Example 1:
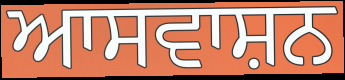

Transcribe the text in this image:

ਆਸਵਾਸ਼ਨ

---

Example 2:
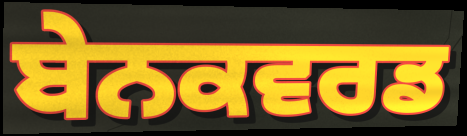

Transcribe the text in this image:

ਬੇਨਕਵਰਡ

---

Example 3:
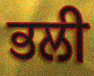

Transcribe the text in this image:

ਭਲੀ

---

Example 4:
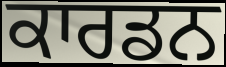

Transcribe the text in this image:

ਕਾਰਡਨ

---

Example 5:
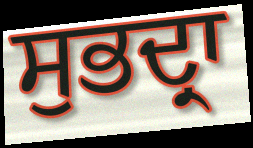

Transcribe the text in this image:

ਸੁਭਦ੍ਰਾ